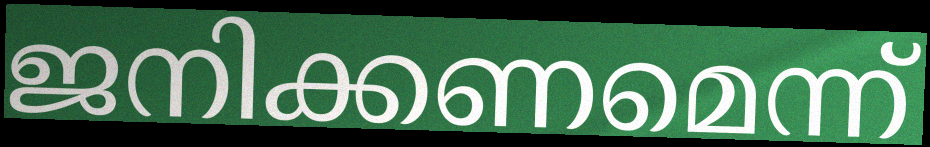
ജനിക്കണമെന്ന്